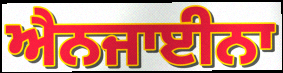
ਐਨਜਾਈਨਾ